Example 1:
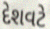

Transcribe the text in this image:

દેશવટે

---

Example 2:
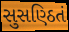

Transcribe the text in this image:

સુસણ્ઠિતં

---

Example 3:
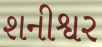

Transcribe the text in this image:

શનીશ્વર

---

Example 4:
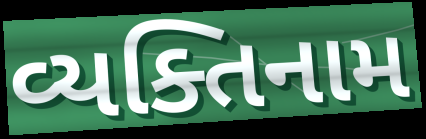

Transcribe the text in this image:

વ્યક્તિનામ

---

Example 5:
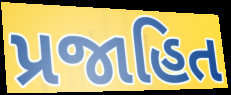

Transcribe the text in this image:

પ્રજાહિત